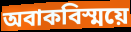
অবাকবিস্ময়ে